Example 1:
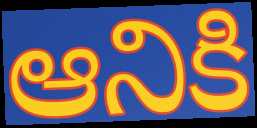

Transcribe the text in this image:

ఆనికి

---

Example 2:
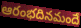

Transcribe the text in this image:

ఆరంభదినమందే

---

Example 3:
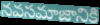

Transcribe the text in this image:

నవసమాజానికి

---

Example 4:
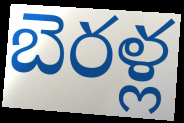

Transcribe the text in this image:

బెరళ్ల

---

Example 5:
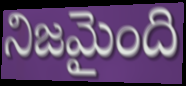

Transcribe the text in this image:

నిజమైంది